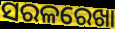
ସରଳରେଖା